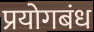
प्रयोगबंध